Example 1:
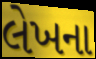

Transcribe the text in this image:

લેખના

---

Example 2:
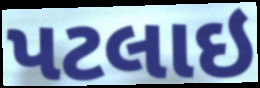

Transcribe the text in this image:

પટલાઇ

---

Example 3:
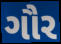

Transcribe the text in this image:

ગૌર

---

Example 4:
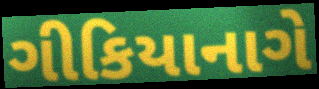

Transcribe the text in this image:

ગીકિયાનાગે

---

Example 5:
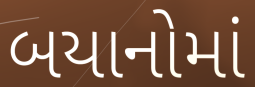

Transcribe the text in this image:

બયાનોમાં